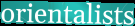
orientalists